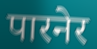
पारनेर